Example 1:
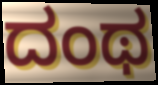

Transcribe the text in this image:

ದಂಥ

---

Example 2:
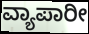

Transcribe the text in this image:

ವ್ಯಾಪಾರೀ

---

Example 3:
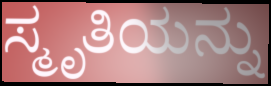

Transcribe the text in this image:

ಸ್ಮೃತಿಯನ್ನು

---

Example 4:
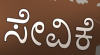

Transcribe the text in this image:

ಸೇವಿಕೆ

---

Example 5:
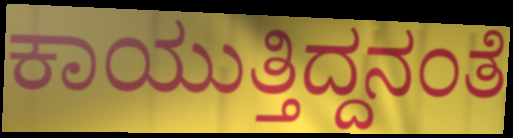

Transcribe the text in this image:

ಕಾಯುತ್ತಿದ್ದನಂತೆ